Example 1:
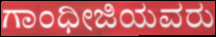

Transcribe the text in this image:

ಗಾಂಧೀಜಿಯವರು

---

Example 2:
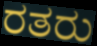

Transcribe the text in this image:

ರತರು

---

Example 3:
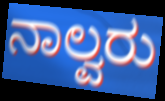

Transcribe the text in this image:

ನಾಲ್ವರು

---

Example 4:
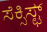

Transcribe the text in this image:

ಸೆಕ್ಸಿಸ್ಟ್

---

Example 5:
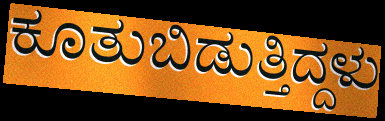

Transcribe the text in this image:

ಕೂತುಬಿಡುತ್ತಿದ್ದಳು